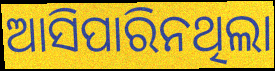
ଆସିପାରିନଥିଲା